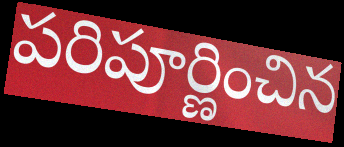
పరిపూర్ణించిన